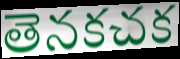
తెనకచక